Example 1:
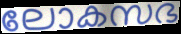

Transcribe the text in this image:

ലോകസഭ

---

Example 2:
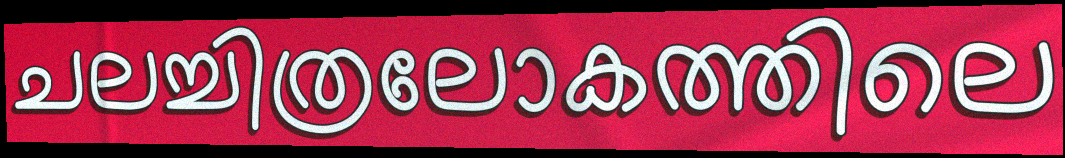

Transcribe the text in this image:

ചലച്ചിത്രലോകത്തിലെ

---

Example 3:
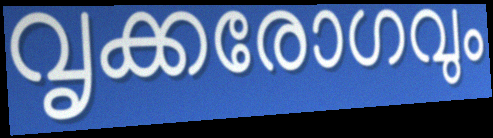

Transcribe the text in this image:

വൃക്കരോഗവും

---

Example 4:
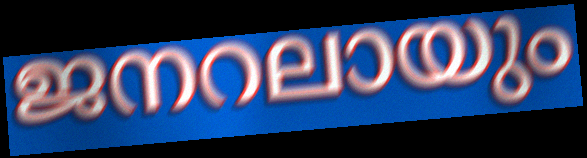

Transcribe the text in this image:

ജനറലായും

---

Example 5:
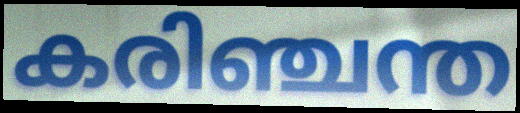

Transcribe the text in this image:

കരിഞ്ചന്ത